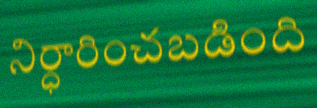
నిర్ధారించబడింది